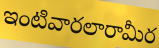
ఇంటివారలారామీర